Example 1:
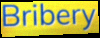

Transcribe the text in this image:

Bribery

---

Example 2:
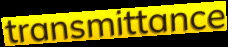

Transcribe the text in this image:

transmittance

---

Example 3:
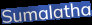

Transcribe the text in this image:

Sumalatha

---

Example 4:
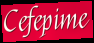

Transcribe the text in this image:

Cefepime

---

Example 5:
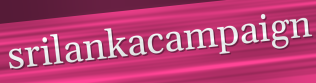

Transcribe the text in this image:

srilankacampaign